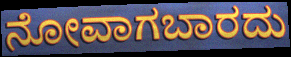
ನೋವಾಗಬಾರದು